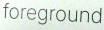
foreground